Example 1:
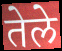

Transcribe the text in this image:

तेले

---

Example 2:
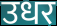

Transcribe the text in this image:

उधर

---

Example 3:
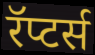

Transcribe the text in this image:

रॅप्टर्स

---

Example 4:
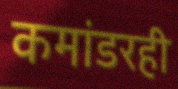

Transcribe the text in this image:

कमांडरही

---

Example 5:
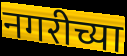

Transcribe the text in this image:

नगरीच्या